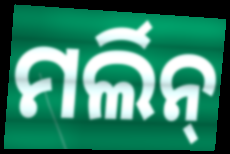
ମର୍ଲିନ୍